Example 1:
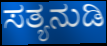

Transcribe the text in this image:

ಸತ್ಯನುಡಿ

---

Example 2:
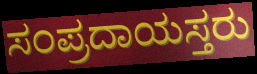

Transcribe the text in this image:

ಸಂಪ್ರದಾಯಸ್ತರು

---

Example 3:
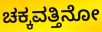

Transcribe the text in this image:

ಚಕ್ಕವತ್ತಿನೋ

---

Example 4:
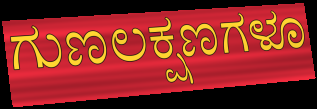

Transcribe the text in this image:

ಗುಣಲಕ್ಷಣಗಳೂ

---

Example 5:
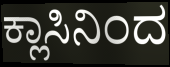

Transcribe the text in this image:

ಕ್ಲಾಸಿನಿಂದ